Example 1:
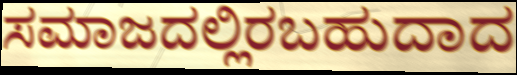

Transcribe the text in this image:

ಸಮಾಜದಲ್ಲಿರಬಹುದಾದ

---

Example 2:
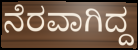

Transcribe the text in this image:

ನೆರವಾಗಿದ್ದ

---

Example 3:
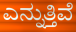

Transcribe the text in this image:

ಎನ್ನುತ್ತಿವೆ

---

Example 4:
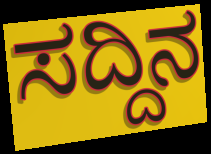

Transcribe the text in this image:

ಸದ್ದಿನ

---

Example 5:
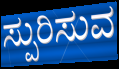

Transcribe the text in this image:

ಸ್ಪುರಿಸುವ